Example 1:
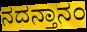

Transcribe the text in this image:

ನದನ್ತಾನಂ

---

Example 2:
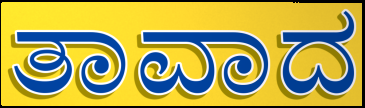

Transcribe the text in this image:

ತಾವಾದ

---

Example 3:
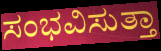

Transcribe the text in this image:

ಸಂಭವಿಸುತ್ತಾ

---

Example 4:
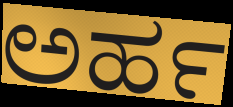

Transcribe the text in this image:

ಅರ್ಹ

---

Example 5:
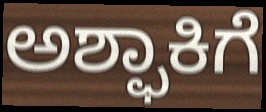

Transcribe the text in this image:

ಅಶ್ಫಾಕಿಗೆ